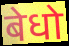
बेधो